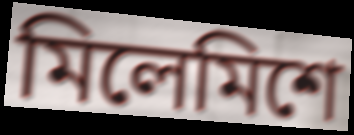
মিলেমিশে